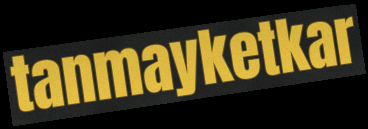
tanmayketkar